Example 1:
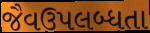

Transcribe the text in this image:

જૈવઉપલબ્ધતા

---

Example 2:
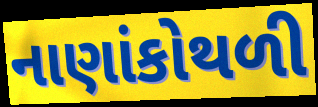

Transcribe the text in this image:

નાણાંકોથળી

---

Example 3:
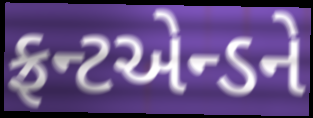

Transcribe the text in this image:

ફ્રન્ટએન્ડને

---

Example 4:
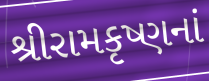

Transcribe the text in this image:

શ્રીરામકૃષ્ણનાં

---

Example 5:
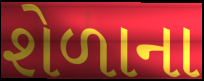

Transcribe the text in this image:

શેળાના